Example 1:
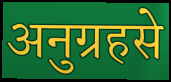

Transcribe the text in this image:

अनुग्रहसे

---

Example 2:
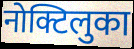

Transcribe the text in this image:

नोक्टिलुका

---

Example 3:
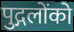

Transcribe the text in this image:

पुद्गलोंको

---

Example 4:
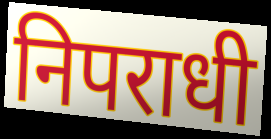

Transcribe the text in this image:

निपराधी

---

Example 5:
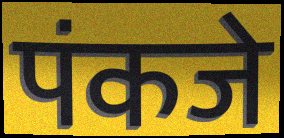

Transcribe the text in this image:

पंकजे